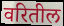
वरितील